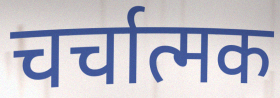
चर्चात्मक